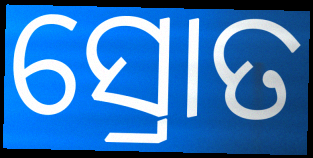
ସ୍ରୋତ